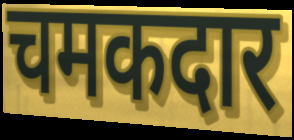
चमकदार